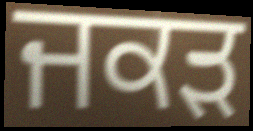
ਜਕੜ